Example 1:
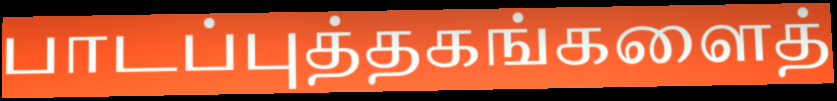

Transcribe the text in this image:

பாடப்புத்தகங்களைத்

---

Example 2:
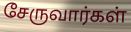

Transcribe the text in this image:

சேருவார்கள்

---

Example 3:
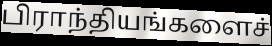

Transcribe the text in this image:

பிராந்தியங்களைச்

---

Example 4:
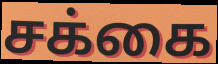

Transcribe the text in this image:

சக்கை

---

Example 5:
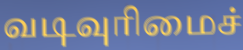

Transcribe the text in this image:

வடிவுரிமைச்